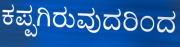
ಕಪ್ಪಗಿರುವುದರಿಂದ